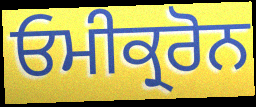
ਓਮੀਕ੍ਰਰੋਨ